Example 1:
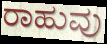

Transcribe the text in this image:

ರಾಹುವು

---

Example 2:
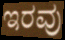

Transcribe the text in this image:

ಇರವು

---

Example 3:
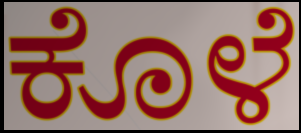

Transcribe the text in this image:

ಕೊಳೆ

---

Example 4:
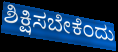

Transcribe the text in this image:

ಶಿಕ್ಷಿಸಬೇಕೆಂದು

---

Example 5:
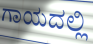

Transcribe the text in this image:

ಗಾಯದಲ್ಲಿ